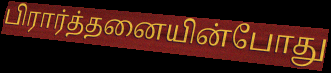
பிரார்த்தனையின்போது